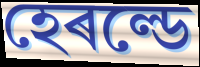
হেৰল্ডে